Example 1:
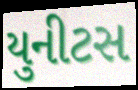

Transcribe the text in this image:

યુનીટસ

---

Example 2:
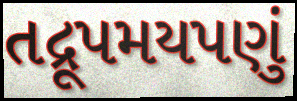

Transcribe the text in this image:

તદ્રૂપમયપણું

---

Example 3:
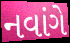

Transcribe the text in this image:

નવાંગે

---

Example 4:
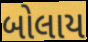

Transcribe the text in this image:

બોલાય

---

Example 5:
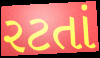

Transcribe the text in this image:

રટતાં